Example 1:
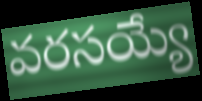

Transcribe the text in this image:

వరసయ్యే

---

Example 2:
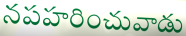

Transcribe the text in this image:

నపహరించువాడు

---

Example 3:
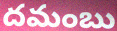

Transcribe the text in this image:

దమంబు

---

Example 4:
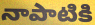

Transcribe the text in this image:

నాపాటికి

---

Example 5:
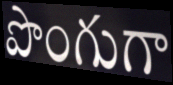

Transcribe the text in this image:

పొంగుగా